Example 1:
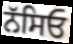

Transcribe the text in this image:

ਨੱਸਿਓ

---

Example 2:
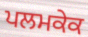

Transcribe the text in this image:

ਪਲਮਕੇਕ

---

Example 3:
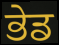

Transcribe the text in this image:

ਭੇਡ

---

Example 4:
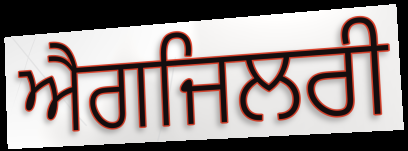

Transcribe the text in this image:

ਐਗਜਿਲਰੀ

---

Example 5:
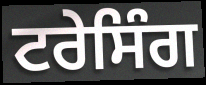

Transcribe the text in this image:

ਟਰੇਸਿੰਗ